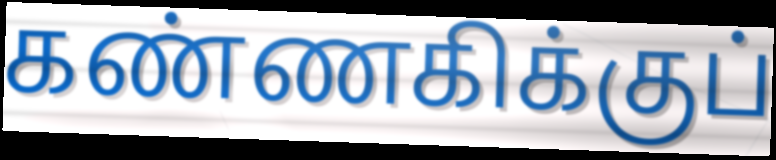
கண்ணகிக்குப்